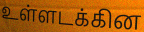
உள்ளடக்கின